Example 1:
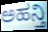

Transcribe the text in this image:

ಅಹನ್ತಿ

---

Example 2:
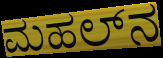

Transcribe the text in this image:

ಮಹಲ್‌ನ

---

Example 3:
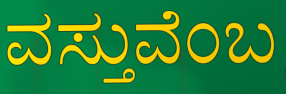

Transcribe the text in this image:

ವಸ್ತುವೆಂಬ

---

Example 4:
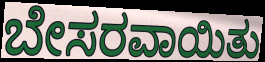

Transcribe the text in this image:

ಬೇಸರವಾಯಿತು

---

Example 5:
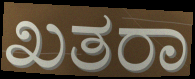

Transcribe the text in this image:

ಖತರಾ